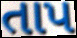
તાપ